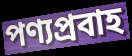
পণ্যপ্রবাহ